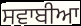
ਸਵਾਬੀਆ